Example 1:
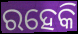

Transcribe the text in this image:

ରହେକି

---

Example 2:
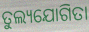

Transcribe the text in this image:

ତୁଲ୍ୟଯୋଗିତା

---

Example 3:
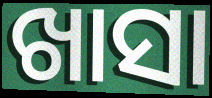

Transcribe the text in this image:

ଖାସା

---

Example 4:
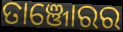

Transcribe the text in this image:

ତାଞ୍ଜୋରର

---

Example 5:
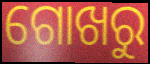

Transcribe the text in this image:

ଗୋଖରୁ